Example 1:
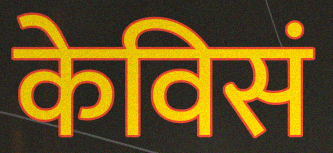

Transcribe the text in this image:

केविसं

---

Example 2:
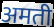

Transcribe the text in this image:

अमती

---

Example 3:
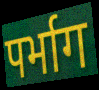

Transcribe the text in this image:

पर्भाग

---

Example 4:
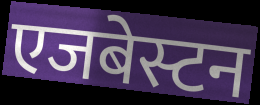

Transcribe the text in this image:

एजबेस्‍टन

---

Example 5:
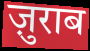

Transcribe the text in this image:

ज़ुराब